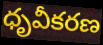
ధృవీకరణ